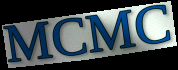
MCMC